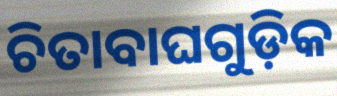
ଚିତାବାଘଗୁଡ଼ିକ